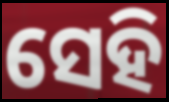
ସେହି